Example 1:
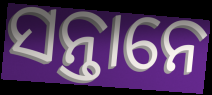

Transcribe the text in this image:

ସନ୍ତାନେ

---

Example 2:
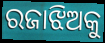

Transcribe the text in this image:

ରଜାଝିଅକୁ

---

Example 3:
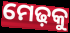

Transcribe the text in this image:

ମେଢ଼କୁ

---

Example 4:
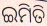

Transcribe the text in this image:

ଇମିତି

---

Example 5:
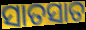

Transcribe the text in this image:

ସାତସାତ